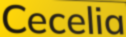
Cecelia